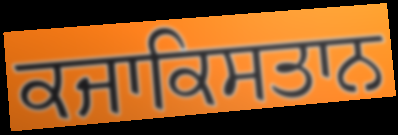
ਕਜਾਕਿਸਤਾਨ